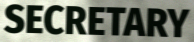
SECRETARY